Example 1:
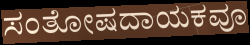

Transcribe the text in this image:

ಸಂತೋಷದಾಯಕವೂ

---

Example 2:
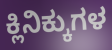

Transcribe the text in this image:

ಕ್ಲಿನಿಕ್ಕುಗಳ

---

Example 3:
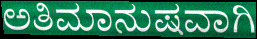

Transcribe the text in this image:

ಅತಿಮಾನುಷವಾಗಿ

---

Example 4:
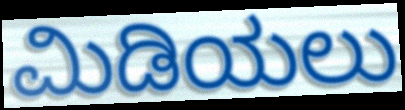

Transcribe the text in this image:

ಮಿಡಿಯಲು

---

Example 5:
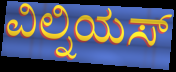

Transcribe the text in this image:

ವಿಲ್ನಿಯಸ್